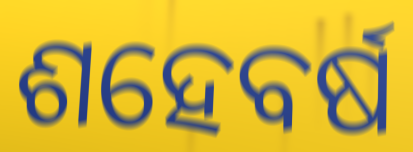
ଶହେବର୍ଷ